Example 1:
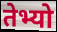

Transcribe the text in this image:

तेभ्यो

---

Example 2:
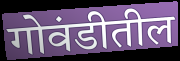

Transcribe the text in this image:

गोवंडीतील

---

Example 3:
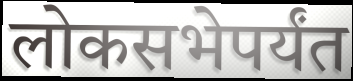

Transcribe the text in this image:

लोकसभेपर्यंत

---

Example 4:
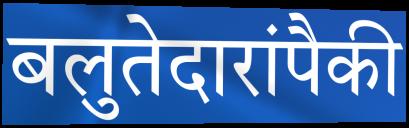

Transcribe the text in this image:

बलुतेदारांपैकी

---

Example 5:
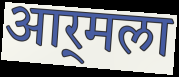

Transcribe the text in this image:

आर्मला